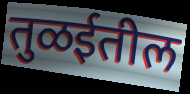
तुळईतील